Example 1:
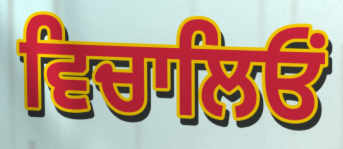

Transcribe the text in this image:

ਵਿਚਾਲਿਓਂ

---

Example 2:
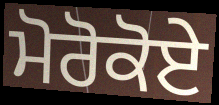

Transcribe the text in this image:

ਮੋਰੋਕੋਏ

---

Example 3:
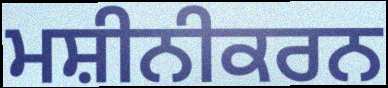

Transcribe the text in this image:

ਮਸ਼ੀਨੀਕਰਨ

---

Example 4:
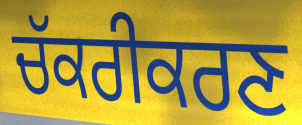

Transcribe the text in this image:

ਚੱਕਰੀਕਰਣ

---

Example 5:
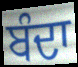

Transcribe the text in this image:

ਬੰਦਾ